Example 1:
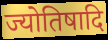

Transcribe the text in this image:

ज्योतिषादि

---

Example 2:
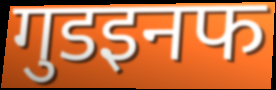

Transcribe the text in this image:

गुडइनफ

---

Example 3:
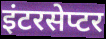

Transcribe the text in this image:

इंटरसेप्टर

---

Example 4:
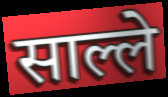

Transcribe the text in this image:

साल्ले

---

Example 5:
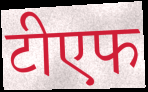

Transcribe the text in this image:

टीएफ